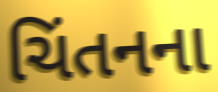
ચિંતનના